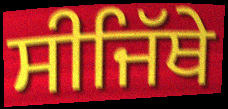
ਸੀਜਿੱਥੇ